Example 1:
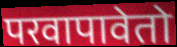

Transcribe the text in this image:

परवापावेतो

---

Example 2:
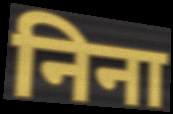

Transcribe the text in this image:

निना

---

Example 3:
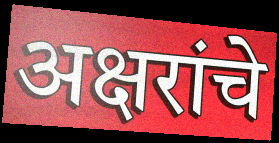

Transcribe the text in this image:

अक्षरांचे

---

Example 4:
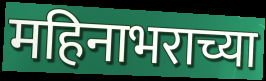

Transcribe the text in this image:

महिनाभराच्या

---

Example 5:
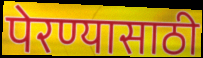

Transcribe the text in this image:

पेरण्यासाठी